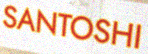
SANTOSHI